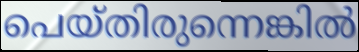
പെയ്തിരുന്നെങ്കിൽ